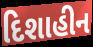
દિશાહીન